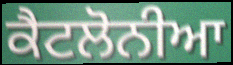
ਕੈਟਲੋਨੀਆ